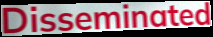
Disseminated